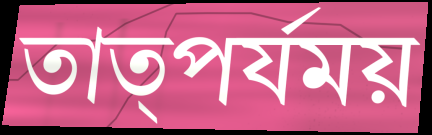
তাত্পর্যময়